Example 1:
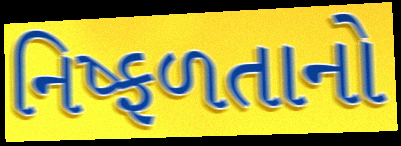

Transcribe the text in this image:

નિષ્ફળતાનો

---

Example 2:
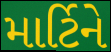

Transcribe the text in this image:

માર્ટિને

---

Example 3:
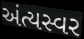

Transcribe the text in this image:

અંત્યસ્વર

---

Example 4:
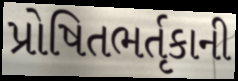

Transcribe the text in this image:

પ્રોષિતભર્તૃકાની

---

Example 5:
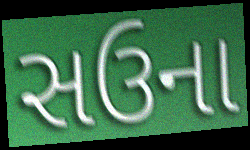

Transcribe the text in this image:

સઉના